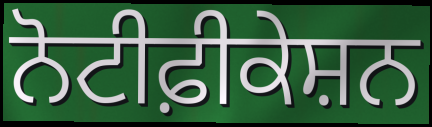
ਨੋਟੀਫ਼ੀਕੇਸ਼ਨ